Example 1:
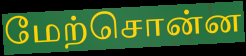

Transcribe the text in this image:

மேற்சொன்ன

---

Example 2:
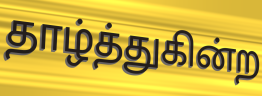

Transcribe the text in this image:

தாழ்த்துகின்ற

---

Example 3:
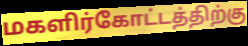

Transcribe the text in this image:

மகளிர்கோட்டத்திற்கு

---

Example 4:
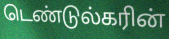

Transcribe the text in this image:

டெண்டுல்கரின்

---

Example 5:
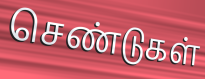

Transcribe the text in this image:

செண்டுகள்